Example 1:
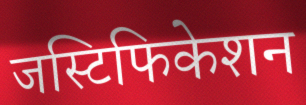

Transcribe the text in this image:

जस्टिफिकेशन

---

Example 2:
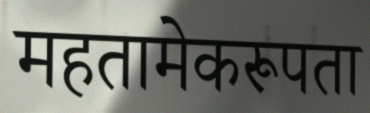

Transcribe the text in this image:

महतामेकरूपता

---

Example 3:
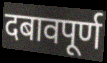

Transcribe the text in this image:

दबावपूर्ण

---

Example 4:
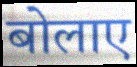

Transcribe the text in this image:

बोलाए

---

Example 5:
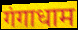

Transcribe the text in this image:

गंगाधाम